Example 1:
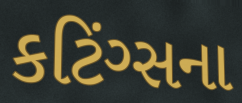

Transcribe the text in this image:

કટિંગ્સના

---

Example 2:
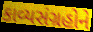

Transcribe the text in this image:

કાવ્યસંગ્રહોને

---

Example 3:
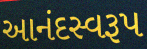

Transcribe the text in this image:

આનંદસ્વરૂપ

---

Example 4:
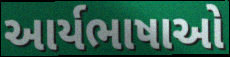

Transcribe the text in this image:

આર્યભાષાઓ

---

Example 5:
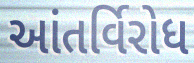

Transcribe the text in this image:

આંતર્વિરોધ